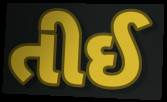
તીઈ